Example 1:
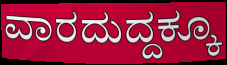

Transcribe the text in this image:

ವಾರದುದ್ದಕ್ಕೂ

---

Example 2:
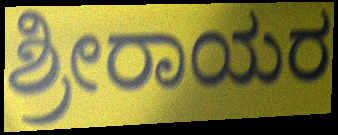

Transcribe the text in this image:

ಶ್ರೀರಾಯರ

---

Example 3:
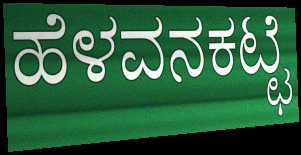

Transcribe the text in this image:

ಹೆಳವನಕಟ್ಟೆ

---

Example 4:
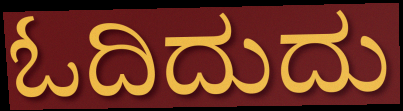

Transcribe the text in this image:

ಓದಿದುದು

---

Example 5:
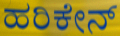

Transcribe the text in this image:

ಹರಿಕೇನ್